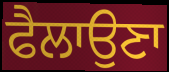
ਫੈਲਾਉਣਾ